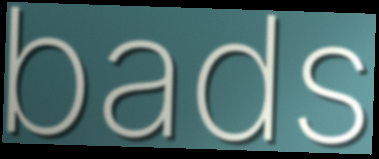
bads